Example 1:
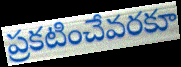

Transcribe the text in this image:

ప్రకటించేవరకూ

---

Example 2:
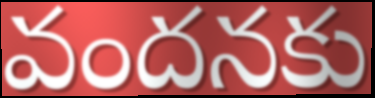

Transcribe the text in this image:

వందనకు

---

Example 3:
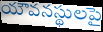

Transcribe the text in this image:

యౌవనస్థులపై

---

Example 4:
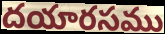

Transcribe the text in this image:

దయారసము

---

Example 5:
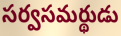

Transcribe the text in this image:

సర్వసమర్థుడు